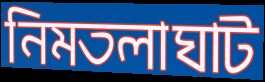
নিমতলাঘাট